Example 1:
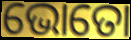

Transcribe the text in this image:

ଭୋତୋ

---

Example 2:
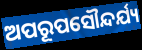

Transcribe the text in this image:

ଅପରୂପସୌନ୍ଦର୍ଯ୍ୟ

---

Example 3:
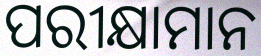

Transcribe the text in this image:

ପରୀକ୍ଷାମାନ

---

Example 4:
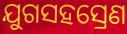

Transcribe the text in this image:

ଯୁଗସହସ୍ରେଣ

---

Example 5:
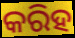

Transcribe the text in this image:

କରିହ